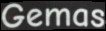
Gemas